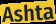
Ashta